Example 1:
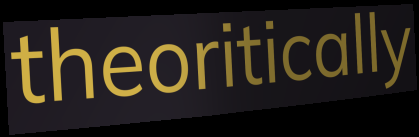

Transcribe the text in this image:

theoritically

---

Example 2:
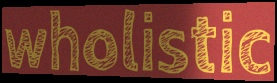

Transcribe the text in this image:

wholistic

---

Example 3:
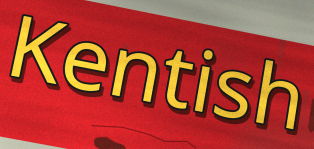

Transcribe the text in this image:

Kentish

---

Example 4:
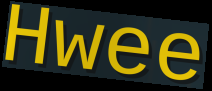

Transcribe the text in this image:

Hwee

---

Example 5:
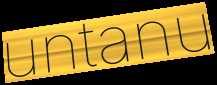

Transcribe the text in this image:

untanu